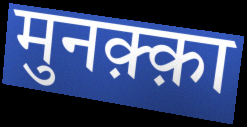
मुनक़्क़ा